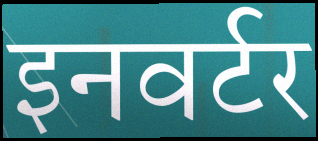
इनवर्टर